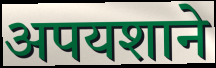
अपयशाने